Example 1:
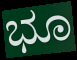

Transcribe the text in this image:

ಭೂ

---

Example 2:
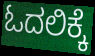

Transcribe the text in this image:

ಓದಲಿಕ್ಕೆ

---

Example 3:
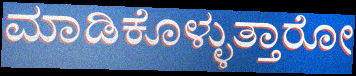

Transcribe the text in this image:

ಮಾಡಿಕೊಳ್ಳುತ್ತಾರೋ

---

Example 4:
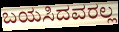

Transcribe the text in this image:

ಬಯಸಿದವರಲ್ಲ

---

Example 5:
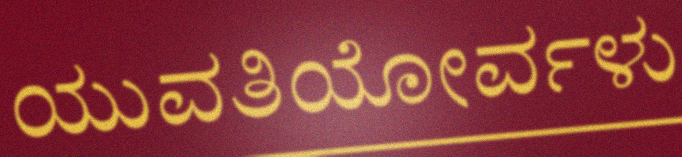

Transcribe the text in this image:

ಯುವತಿಯೋರ್ವಳು